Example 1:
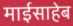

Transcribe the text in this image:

माईसाहेब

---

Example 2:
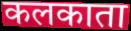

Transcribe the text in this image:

कलकाता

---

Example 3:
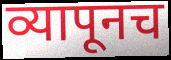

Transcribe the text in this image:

व्यापूनच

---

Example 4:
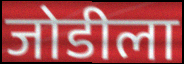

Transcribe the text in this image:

जोडीला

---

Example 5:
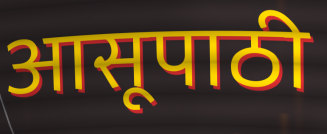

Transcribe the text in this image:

आसूपाठी